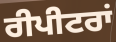
ਰੀਪੀਟਰਾਂ